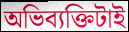
অভিব্যক্তিটাই